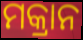
ମକ୍ରାନ